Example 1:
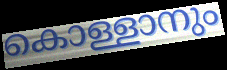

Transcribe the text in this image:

കൊള്ളാനും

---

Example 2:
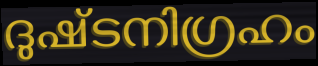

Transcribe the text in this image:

ദുഷ്‌ടനിഗ്രഹം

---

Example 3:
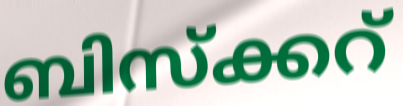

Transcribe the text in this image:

ബിസ്ക്കറ്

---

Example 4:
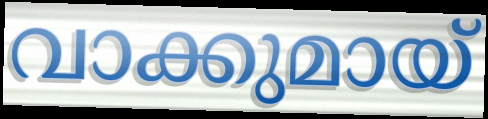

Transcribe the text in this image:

വാക്കുമായ്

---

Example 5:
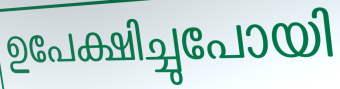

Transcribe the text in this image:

ഉപേക്ഷിച്ചുപോയി